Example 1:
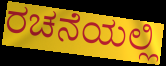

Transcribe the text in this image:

ರಚನೆಯಲ್ಲಿ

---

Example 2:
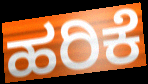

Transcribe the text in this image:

ಹರಿಕೆ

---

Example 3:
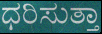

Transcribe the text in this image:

ಧರಿಸುತ್ತಾ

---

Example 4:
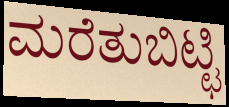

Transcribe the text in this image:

ಮರೆತುಬಿಟ್ಟಿ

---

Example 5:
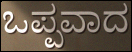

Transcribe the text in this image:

ಒಪ್ಪವಾದ